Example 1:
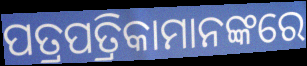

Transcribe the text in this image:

ପତ୍ରପତ୍ରିକାମାନଙ୍କରେ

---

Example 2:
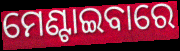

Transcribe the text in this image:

ମେଣ୍ଟାଇବାରେ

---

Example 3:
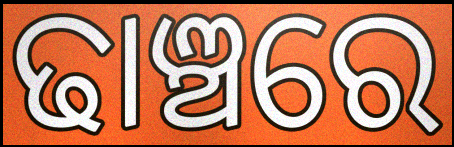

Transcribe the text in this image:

ଢାଞ୍ଚରେ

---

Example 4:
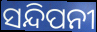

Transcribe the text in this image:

ସନ୍ଦିପନୀ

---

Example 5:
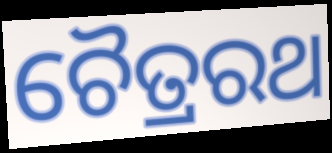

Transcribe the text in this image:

ଚୈତ୍ରରଥ